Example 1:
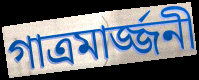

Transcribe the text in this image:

গাত্রমার্জ্জনী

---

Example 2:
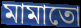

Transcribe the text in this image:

মামাতো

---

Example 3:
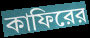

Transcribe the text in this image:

কাফিরের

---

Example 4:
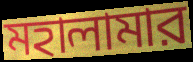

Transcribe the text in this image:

মহালামার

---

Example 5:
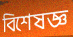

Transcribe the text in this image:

বিশেষজ্ঞ